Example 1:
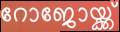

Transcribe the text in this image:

റോജോയ്ക്ക്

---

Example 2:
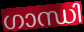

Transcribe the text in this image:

ഗാന്ധി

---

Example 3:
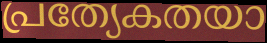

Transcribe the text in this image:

പ്രത്യേകതയാ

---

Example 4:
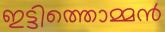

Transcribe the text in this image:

ഇട്ടിത്തൊമ്മൻ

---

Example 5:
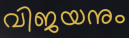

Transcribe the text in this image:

വിജയനും